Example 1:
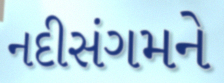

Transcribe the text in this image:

નદીસંગમને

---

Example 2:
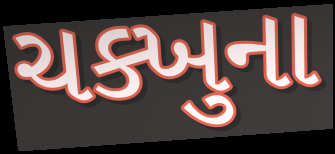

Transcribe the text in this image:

ચક્ખુના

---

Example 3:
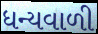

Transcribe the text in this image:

ધન્યવાળી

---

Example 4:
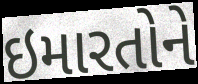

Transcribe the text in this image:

ઇમારતોને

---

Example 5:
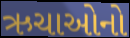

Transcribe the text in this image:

ઋચાઓનો